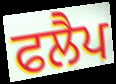
ਫਲੈਪ